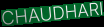
CHAUDHARI